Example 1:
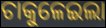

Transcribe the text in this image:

ଚାକୁଳେଇଲା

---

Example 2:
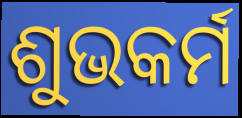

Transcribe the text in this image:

ଶୁଭକର୍ମ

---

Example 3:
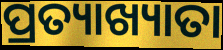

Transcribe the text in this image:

ପ୍ରତ୍ୟାଖ୍ୟାତା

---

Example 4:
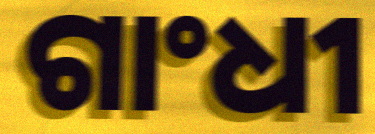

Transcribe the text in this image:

ଗାଂଧୀ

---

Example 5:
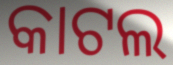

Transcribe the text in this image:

କାଟଲ